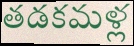
తడకమళ్ల